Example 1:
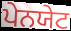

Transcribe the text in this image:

ਪੇਨਯੇਟ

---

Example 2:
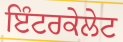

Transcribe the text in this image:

ਇੰਟਰਕੇਲੇਟ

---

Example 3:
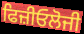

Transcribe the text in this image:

ਫਿਜ਼ੀਓਲੋਜੀ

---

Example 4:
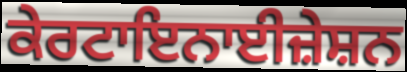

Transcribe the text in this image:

ਕੇਰਟਾਇਨਾਈਜ਼ੇਸ਼ਨ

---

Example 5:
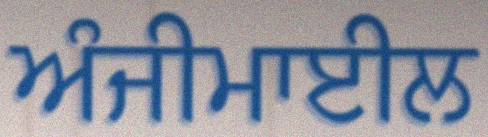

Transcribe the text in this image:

ਅੰਜੀਮਾਈਲ